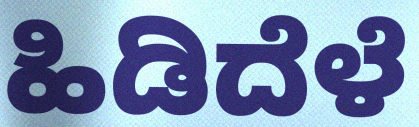
ಹಿಡಿದೆಳೆ